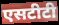
एसटीटी